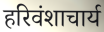
हरिवंशाचार्य